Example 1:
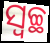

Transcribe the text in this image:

ସ୍ବଚ୍ଛ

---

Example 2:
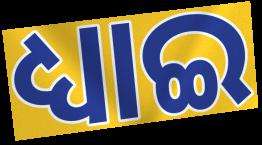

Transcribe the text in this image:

ଧ୍ୟାଇ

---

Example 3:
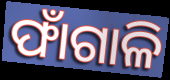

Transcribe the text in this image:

ଫାଁଗାଳି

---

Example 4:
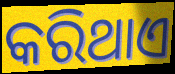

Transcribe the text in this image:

କରିଥାଏ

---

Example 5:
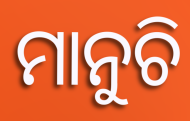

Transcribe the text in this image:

ମାନୁଚି